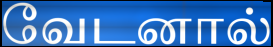
வேடனால்